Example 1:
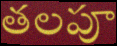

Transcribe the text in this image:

తలపూ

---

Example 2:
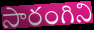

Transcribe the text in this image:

సారంగిని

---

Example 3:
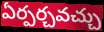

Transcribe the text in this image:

ఏర్పర్చవచ్చు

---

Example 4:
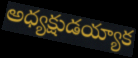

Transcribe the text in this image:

అధ్యక్షుడయ్యాక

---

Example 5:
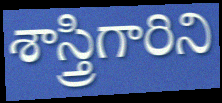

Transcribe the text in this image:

శాస్త్రిగారిని